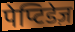
पेप्टिडेज़